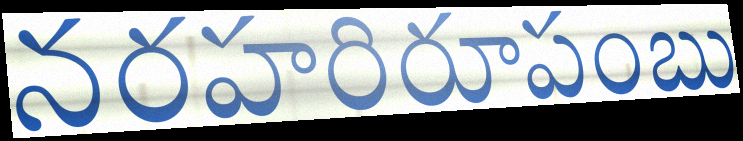
నరహరిరూపంబు